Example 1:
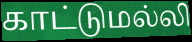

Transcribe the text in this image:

காட்டுமல்லி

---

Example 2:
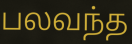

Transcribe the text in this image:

பலவந்த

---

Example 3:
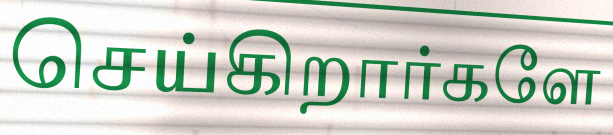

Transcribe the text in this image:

செய்கிறார்களே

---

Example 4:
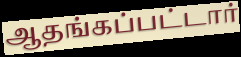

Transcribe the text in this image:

ஆதங்கப்பட்டார்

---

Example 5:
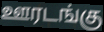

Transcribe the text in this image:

ஊரடங்கு